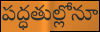
పద్ధతుల్లోనూ